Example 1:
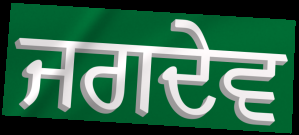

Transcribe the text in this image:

ਜਗਦੇਵ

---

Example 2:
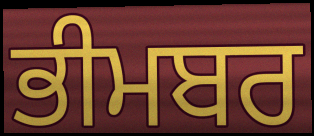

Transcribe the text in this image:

ਭੀਮਬਰ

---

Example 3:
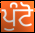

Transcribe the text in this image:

ਪੁੰਟੋ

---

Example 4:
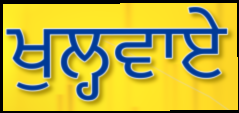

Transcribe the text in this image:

ਖੁਲ੍ਹਵਾਏ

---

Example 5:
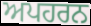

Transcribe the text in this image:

ਅਪਹਰਨ